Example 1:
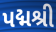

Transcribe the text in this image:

પદ્મશ્રી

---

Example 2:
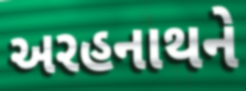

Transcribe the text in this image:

અરહનાથને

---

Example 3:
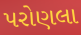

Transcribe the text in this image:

પરોણલા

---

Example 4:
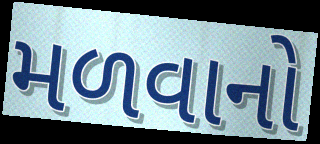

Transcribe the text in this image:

મળવાનો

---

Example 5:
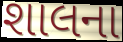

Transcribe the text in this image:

શાલના